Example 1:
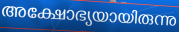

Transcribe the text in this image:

അക്ഷോഭ്യയായിരുന്നു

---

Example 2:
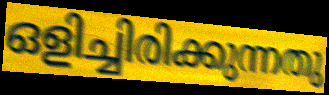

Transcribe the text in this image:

ഒളിച്ചിരിക്കുന്നതു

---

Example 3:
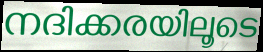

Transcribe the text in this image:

നദിക്കരയിലൂടെ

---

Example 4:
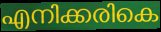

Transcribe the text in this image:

എനിക്കരികെ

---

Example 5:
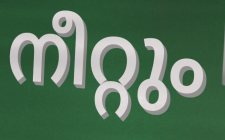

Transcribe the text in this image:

നീറ്റും